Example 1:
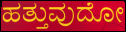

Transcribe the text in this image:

ಹತ್ತುವುದೋ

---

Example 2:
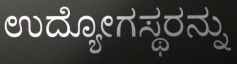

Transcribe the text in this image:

ಉದ್ಯೋಗಸ್ಥರನ್ನು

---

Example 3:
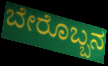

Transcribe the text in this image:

ಬೇರೊಬ್ಬನ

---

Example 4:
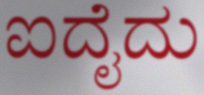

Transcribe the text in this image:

ಐದೈದು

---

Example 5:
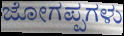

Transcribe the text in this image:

ಜೋಗಪ್ಪಗಳು